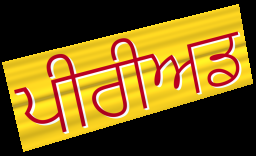
ਪੀਰੀਅਡ